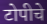
टोपीचे